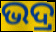
ଭଦ୍ର